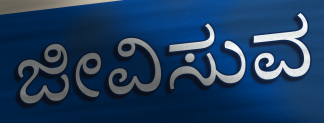
ಜೀವಿಸುವ